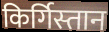
किर्गिस्‍तान